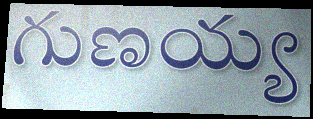
గుణయ్య